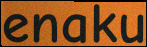
enaku